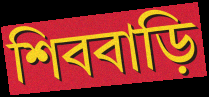
শিববাড়ি